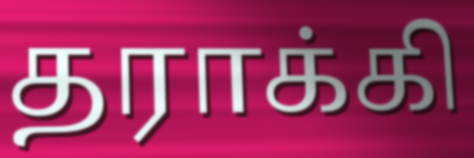
தராக்கி